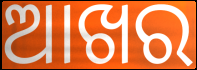
ଆଖର